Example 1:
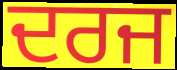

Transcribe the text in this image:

ਦਰਜ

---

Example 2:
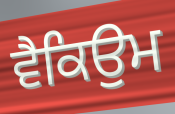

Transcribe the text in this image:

ਵੈਕਿਉਮ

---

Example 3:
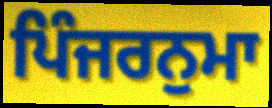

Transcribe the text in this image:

ਪਿੰਜਰਨੁਮਾ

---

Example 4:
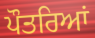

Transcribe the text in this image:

ਪੌਤਰਿਆਂ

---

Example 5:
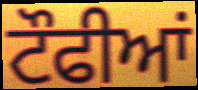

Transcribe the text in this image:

ਟੌਫੀਆਂ